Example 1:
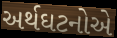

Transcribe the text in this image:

અર્થઘટનોએ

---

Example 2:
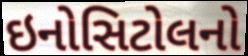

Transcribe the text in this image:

ઇનોસિટોલનો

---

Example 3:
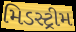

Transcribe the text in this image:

મિડસ્ટ્રીમ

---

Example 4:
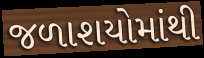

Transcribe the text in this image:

જળાશયોમાંથી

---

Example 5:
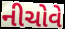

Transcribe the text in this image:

નીચોવે